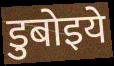
डुबोइये